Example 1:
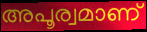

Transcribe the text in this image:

അപൂര്വമാണ്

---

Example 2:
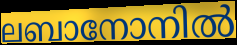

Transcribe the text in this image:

ലബാനോനിൽ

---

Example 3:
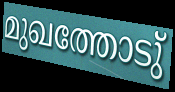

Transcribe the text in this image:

മുഖത്തോടു്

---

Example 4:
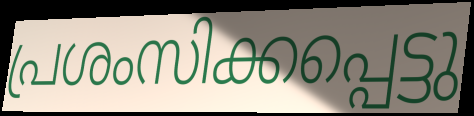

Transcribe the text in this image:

പ്രശംസിക്കപ്പെട്ടു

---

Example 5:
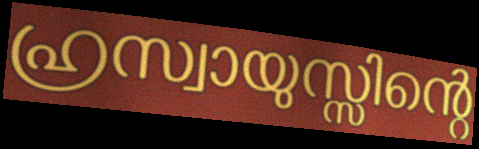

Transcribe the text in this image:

ഹ്രസ്വായുസ്സിന്റെ